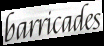
barricades